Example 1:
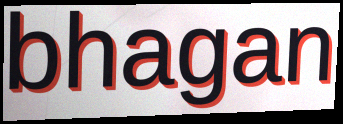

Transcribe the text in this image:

bhagan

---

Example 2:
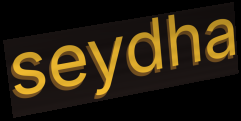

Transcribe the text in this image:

seydha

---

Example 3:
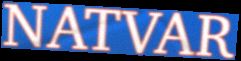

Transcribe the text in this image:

NATVAR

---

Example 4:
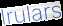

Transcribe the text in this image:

Irulars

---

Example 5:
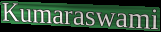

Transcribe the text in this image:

Kumaraswami